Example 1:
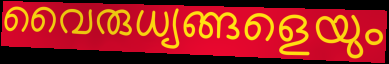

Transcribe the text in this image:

വൈരുധ്യങ്ങളെയും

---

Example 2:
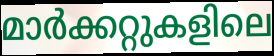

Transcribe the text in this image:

മാർക്കറ്റുകളിലെ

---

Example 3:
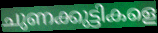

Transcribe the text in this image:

ചുണക്കുട്ടികളെ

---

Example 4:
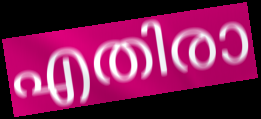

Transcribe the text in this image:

എതിരാ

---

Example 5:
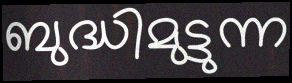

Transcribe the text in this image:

ബുദ്ധിമുട്ടുന്ന